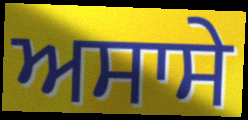
ਅਸਾਸੇ